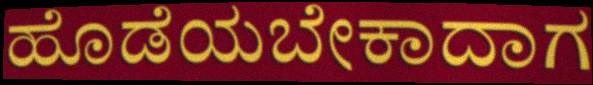
ಹೊಡೆಯಬೇಕಾದಾಗ